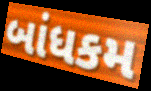
બાંધકમ